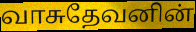
வாசுதேவனின்